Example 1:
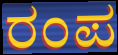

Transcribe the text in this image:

ರಂಪ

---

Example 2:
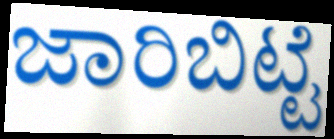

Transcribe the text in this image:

ಜಾರಿಬಿಟ್ಟೆ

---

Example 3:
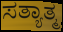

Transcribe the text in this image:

ಸತ್ಯಾತ್ಮ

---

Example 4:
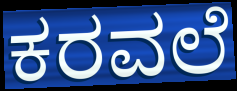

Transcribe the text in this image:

ಕರವಲೆ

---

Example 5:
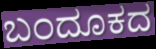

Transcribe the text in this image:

ಬಂದೂಕದ